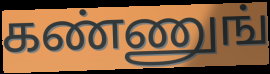
கண்ணுங்